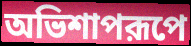
অভিশাপরূপে